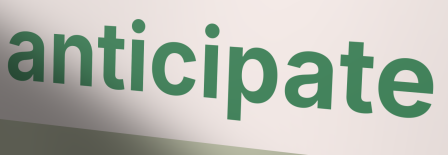
anticipate